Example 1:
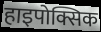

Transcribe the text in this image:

हाइपोक्सिक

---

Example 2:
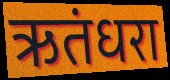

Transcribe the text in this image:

ऋतंधरा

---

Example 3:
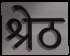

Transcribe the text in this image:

श्रेठ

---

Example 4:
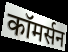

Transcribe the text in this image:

कॉमर्सन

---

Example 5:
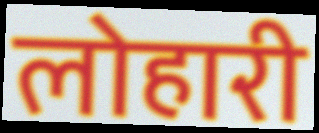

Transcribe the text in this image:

लोहारी